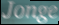
Jonge